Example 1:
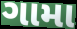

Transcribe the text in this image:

ગામા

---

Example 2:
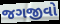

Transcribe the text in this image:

જગજીવો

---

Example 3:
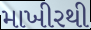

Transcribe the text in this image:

માખીરથી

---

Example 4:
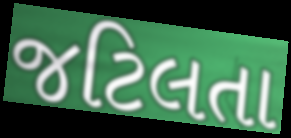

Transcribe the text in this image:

જટિલતા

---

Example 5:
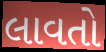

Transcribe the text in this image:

લાવતો